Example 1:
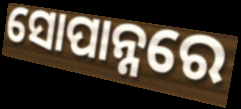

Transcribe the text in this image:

ସୋପାନ୍ନରେ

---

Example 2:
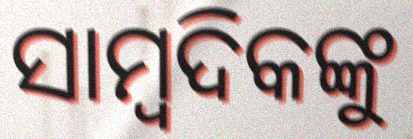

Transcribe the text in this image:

ସାମ୍ବଦିକଙ୍କୁ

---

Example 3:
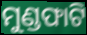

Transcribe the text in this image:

ମୁଣ୍ଡଫାଟି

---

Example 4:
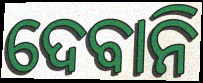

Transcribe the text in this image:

ଦେବାନି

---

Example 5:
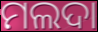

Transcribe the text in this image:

ମଲଦା